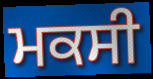
ਮਕਸੀ